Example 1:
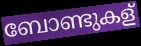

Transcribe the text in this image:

ബോണ്ടുകള്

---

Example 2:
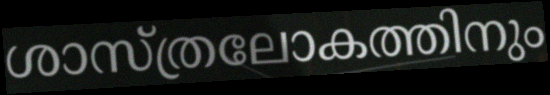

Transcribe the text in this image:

ശാസ്ത്രലോകത്തിനും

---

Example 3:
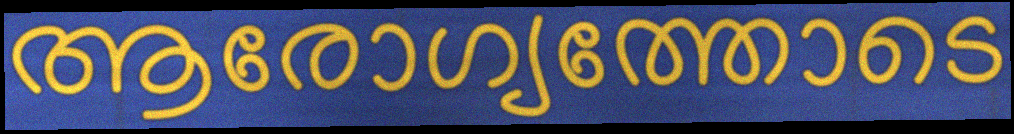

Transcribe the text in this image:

ആരോഗ്യത്തോടെ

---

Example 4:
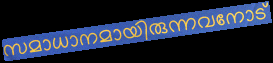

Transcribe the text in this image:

സമാധാനമായിരുന്നവനോട്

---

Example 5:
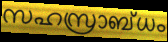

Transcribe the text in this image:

സഹസ്രാബ്ധം